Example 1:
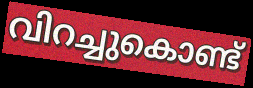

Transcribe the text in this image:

വിറച്ചുകൊണ്ട്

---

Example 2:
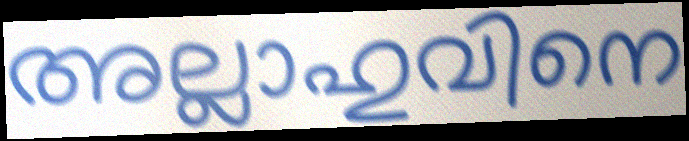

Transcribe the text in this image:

അല്ലാഹുവിനെ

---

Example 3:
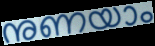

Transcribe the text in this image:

നുണയാം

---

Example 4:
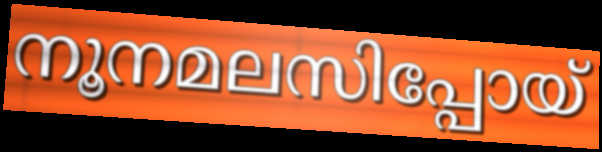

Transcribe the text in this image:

നൂനമലസിപ്പോയ്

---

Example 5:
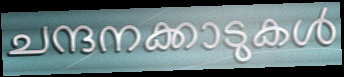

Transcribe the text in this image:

ചന്ദനക്കാടുകൾ